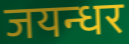
जयन्धर